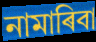
নামাৰিবা